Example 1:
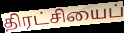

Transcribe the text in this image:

திரட்சியைப்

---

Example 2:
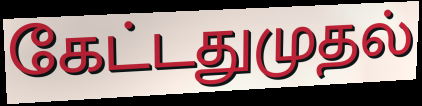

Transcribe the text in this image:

கேட்டதுமுதல்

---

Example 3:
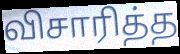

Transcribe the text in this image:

விசாரித்த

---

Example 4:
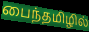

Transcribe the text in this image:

பைந்தமிழில்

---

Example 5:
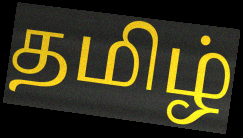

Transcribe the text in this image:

தமிழ்